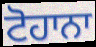
ਟੋਹਾਨਾ